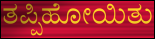
ತಪ್ಪಿಹೋಯಿತು